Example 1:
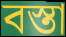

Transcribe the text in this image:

বস্তা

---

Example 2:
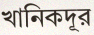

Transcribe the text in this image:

খানিকদূর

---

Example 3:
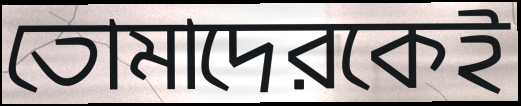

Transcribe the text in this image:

তোমাদেরকেই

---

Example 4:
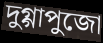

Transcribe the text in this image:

দুগ্গাপুজো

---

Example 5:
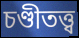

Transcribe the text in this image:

চণ্ডীতত্ত্ব